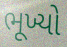
ભૂખ્યો